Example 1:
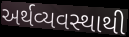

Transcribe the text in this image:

અર્થવ્યવસ્થાથી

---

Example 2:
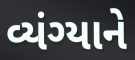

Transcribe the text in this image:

વ્યંગ્યાને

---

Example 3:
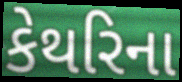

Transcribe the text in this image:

કેથરિના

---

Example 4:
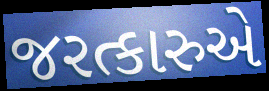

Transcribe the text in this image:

જરત્કારુએ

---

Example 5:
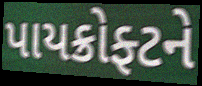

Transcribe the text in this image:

પાયક્રોફ્ટને